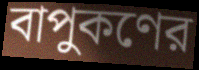
বাপুকণের